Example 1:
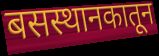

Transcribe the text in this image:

बसस्थानकातून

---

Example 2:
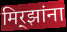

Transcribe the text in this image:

मिर्झांना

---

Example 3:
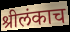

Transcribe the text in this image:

श्रीलंकाच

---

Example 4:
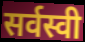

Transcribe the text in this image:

सर्वस्वी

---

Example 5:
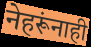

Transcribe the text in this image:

नेहरूंनाही